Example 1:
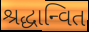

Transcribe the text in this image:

શ્રદ્ધાન્વિત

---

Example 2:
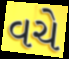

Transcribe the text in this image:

વચે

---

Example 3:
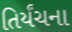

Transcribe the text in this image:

તિર્યંચના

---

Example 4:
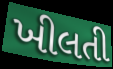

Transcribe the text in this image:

ખીલતી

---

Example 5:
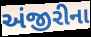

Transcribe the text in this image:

અંજીરીના